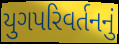
યુગપરિવર્તનનું